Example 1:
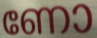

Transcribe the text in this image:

ണോ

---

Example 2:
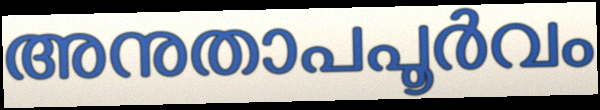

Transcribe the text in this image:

അനുതാപപൂർവം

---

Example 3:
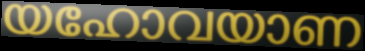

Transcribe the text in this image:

യഹോവയാണ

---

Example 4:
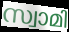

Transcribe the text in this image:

സ്വാമി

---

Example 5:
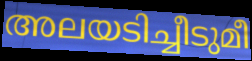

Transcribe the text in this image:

അലയടിച്ചീടുമീ